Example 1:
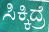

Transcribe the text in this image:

ಸಿಕ್ಕಿದ್ರೆ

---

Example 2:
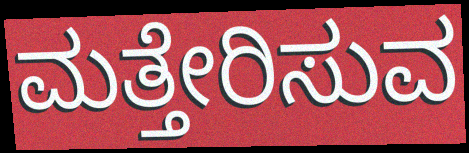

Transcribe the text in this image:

ಮತ್ತೇರಿಸುವ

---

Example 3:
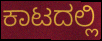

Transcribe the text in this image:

ಕಾಟದಲ್ಲಿ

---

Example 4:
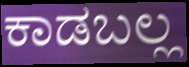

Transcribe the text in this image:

ಕಾಡಬಲ್ಲ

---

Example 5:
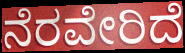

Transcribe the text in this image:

ನೆರವೇರಿದೆ